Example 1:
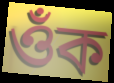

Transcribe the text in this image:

ওঁক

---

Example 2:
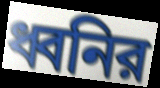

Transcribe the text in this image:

ধ্বনির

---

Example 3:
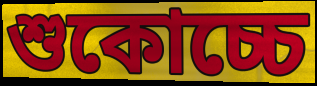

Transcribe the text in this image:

শুকোচ্চে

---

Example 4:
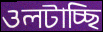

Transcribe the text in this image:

ওলটাচ্ছি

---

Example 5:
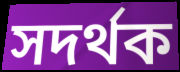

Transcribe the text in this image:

সদর্থক